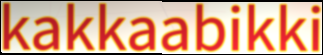
kakkaabikki